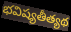
భవిష్యతీత్యథ